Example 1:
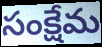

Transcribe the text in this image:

సంక్షేమ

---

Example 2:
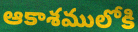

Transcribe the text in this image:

ఆకాశములోకి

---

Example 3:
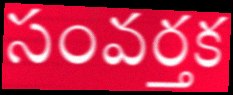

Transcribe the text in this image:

సంవర్తక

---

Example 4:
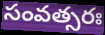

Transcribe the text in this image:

సంవత్సరః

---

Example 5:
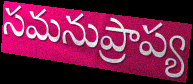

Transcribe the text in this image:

సమనుప్రాప్య